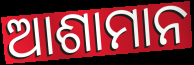
ଆଶାମାନ